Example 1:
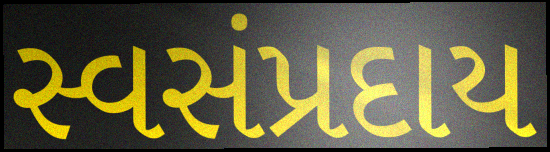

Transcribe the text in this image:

સ્વસંપ્રદાય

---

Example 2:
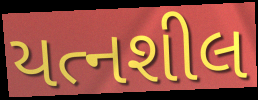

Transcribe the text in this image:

યત્નશીલ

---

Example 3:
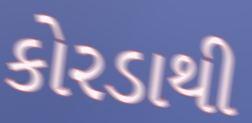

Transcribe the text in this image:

કોરડાથી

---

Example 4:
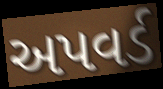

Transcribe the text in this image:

અપવર્ડ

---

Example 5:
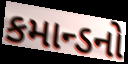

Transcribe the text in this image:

કમાન્ડનો